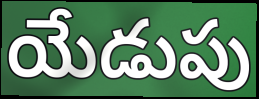
యేడుపు